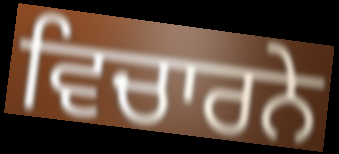
ਵਿਚਾਰਨੇ